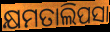
କ୍ଷମତାଲିପସା